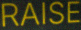
RAISE